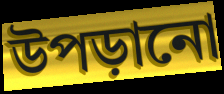
উপড়ানো